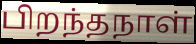
பிறந்தநாள்